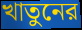
খাতুনের